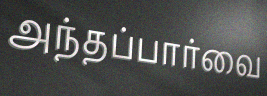
அந்தப்பார்வை